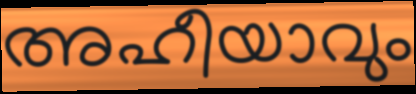
അഹീയാവും